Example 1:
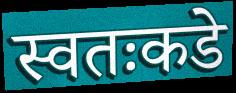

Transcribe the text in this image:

स्वतःकडे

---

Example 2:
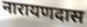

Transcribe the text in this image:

नारायणदास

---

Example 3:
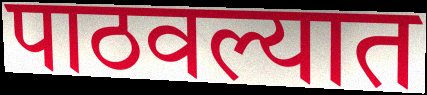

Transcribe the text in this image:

पाठवल्यात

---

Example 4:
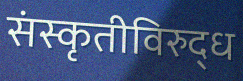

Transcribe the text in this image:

संस्कृतीविरुद्ध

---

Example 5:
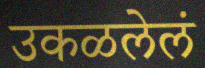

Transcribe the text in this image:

उकळलेलं